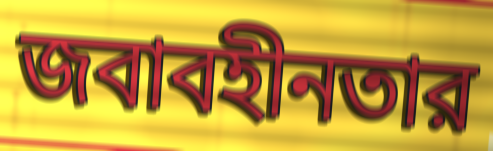
জবাবহীনতার